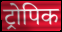
ट्रोपिक